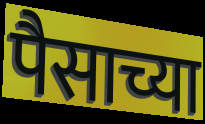
पैसाच्या